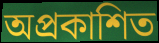
অপ্ৰকাশিত